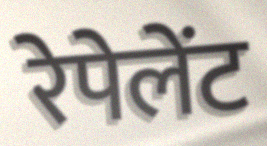
रेपेलेंट